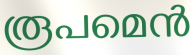
രൂപമെൻ